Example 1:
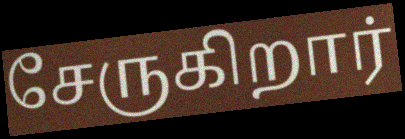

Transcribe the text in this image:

சேருகிறார்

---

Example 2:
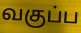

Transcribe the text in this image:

வகுப்ப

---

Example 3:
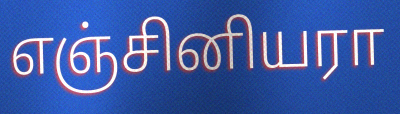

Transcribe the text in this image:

எஞ்சினியரா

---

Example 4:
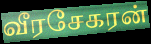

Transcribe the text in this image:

வீரசேகரன்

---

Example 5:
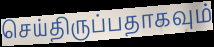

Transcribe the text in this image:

செய்திருப்பதாகவும்